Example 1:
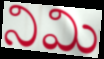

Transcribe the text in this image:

నిమి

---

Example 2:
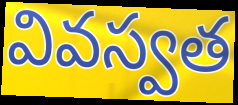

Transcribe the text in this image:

వివస్వత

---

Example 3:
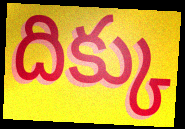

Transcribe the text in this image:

దిక్కు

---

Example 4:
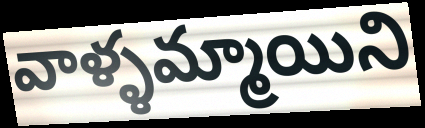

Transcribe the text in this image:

వాళ్ళమ్మాయిని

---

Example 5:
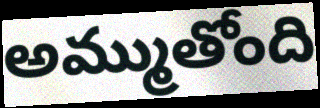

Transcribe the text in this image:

అమ్ముతోంది